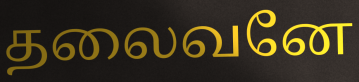
தலைவனே